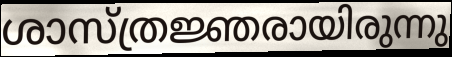
ശാസ്ത്രജ്ഞരായിരുന്നു